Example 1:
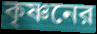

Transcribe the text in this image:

কৃষ্ণনের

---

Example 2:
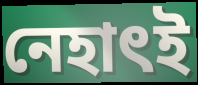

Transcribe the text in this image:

নেহাৎই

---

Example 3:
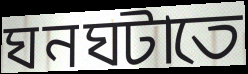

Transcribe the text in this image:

ঘনঘটাতে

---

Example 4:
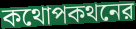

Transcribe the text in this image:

কথোপকথনের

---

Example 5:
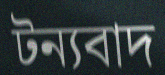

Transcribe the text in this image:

টন্যবাদ